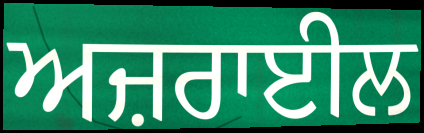
ਅਜ਼ਰਾਈਲ